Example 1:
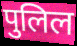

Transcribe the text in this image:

पुलिल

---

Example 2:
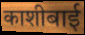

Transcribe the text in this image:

काशीबाई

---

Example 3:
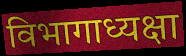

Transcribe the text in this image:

विभागाध्यक्षा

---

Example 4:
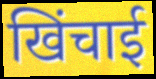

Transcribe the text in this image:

खिंचाई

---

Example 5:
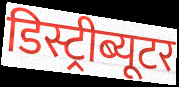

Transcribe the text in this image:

डिस्ट्रीब्यूटर